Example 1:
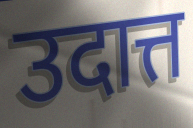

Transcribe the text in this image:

उदात्त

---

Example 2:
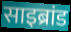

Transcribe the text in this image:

साइब्रांड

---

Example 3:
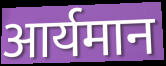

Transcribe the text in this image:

आर्यमान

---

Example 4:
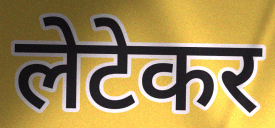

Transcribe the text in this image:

लेटेकर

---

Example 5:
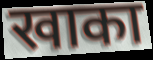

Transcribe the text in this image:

खाका